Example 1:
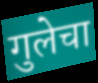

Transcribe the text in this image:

गुलेचा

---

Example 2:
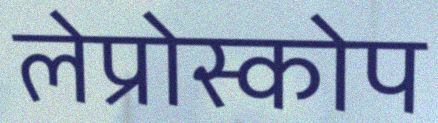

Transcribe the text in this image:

लेप्रोस्कोप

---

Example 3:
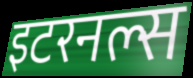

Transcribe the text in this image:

इटरनल्स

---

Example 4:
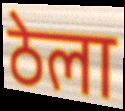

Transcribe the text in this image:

ठेला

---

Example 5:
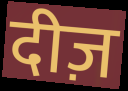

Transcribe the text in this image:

दीज़